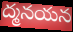
ద్మనయన